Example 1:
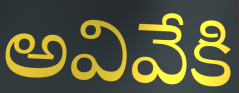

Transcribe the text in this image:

అవివేకి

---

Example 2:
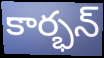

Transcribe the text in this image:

కార్భన్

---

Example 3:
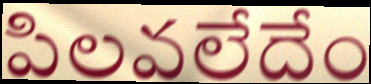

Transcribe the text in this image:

పిలవలేదేం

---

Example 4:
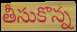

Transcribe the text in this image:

తీసుకొన్న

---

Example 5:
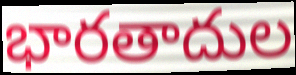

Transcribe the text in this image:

భారతాదుల